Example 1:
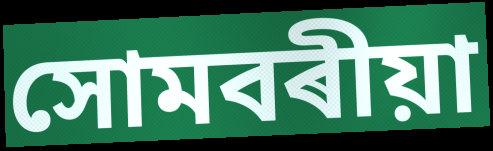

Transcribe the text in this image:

সোমবৰীয়া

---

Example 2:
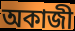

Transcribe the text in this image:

অকাজী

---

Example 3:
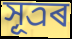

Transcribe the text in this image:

সূত্ৰৰ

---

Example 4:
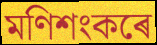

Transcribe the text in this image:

মণিশংকৰে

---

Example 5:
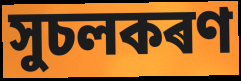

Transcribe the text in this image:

সুচলকৰণ